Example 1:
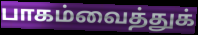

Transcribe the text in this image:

பாகம்வைத்துக்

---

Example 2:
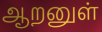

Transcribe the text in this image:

ஆறனுள்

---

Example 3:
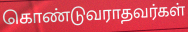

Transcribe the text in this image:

கொண்டுவராதவர்கள்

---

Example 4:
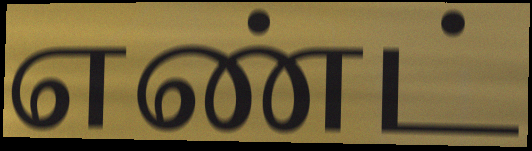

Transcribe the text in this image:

எண்ட்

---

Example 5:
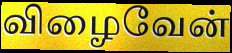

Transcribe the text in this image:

விழைவேன்